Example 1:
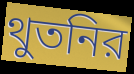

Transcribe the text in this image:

থুতনির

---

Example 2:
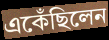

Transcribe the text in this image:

একেঁছিলেন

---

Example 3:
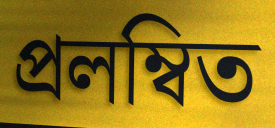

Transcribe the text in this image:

প্রলম্বিত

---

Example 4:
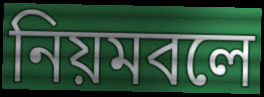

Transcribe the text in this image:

নিয়মবলে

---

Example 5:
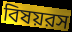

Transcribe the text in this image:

বিষয়রস